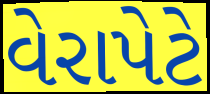
વેરાપેટે